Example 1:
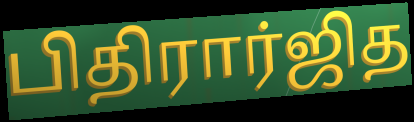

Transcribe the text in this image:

பிதிரார்ஜித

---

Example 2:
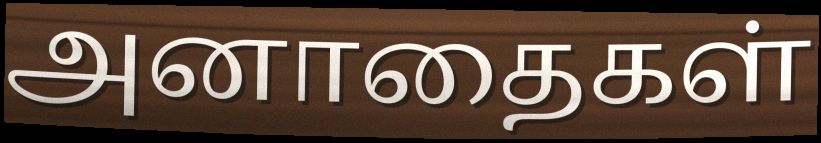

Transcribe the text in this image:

அனாதைகள்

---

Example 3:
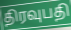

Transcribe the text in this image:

திரவுபதி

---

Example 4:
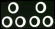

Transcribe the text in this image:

ஃஃ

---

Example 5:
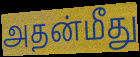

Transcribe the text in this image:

அதன்மீது